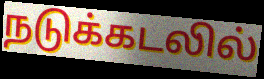
நடுக்கடலில்